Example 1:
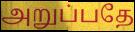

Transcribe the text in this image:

அறுப்பதே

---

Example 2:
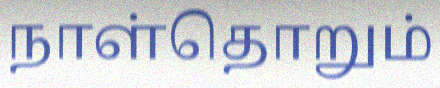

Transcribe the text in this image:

நாள்தொறும்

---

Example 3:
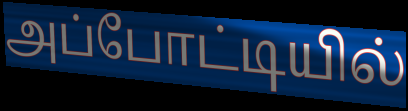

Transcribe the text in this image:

அப்போட்டியில்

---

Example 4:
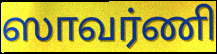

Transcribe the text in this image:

ஸாவர்ணி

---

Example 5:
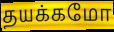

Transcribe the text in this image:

தயக்கமோ